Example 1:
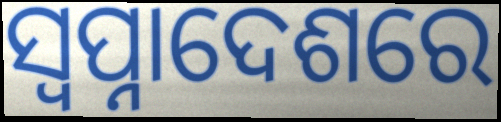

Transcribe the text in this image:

ସ୍ଵପ୍ନାଦେଶରେ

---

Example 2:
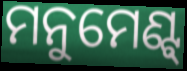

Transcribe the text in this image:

ମନୁମେଣ୍ଟ୍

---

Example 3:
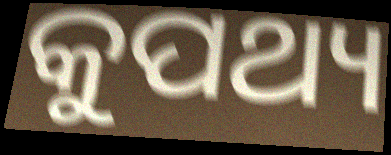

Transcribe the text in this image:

କୁପଥ୍ୟ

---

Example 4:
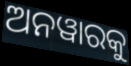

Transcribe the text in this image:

ଅନୱାରକୁ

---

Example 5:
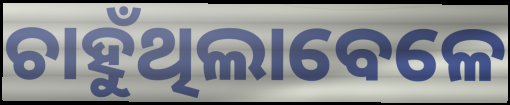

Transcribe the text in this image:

ଚାହୁଁଥିଲାବେଳେ